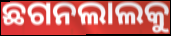
ଛଗନଲାଲକୁ